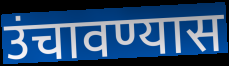
उंचावण्यास